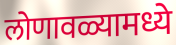
लोणावळ्यामध्ये